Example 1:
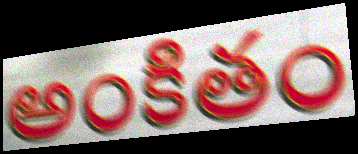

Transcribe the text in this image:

అంకితం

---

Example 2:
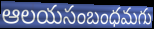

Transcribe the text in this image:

ఆలయసంబంధమగు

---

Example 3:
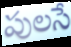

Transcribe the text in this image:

పులసే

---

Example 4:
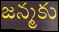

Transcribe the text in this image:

జన్మకు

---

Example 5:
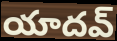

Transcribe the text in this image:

యాదవ్